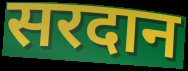
सरदान